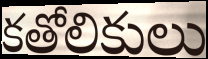
కతోలికులు